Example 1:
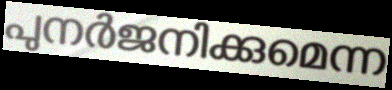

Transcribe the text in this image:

പുനർജനിക്കുമെന്ന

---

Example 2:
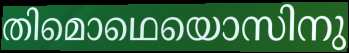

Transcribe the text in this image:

തിമൊഥെയൊസിനു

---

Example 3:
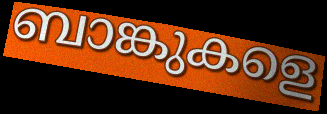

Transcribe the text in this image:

ബാങ്കുകളെ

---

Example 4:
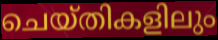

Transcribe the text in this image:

ചെയ്തികളിലും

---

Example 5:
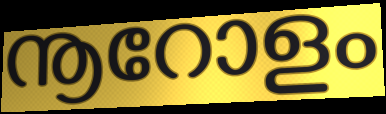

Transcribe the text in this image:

നൂറോളം